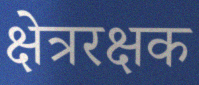
क्षेत्ररक्षक